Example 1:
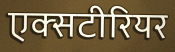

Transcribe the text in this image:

एक्‍सटीरियर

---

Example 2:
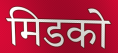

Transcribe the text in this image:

मिडको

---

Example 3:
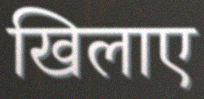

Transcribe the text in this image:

खिलाए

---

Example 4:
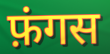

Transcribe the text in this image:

फ़ंगस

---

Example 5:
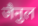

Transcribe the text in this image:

जैनुल